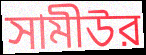
সামীউর